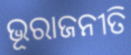
ଭୂରାଜନୀତି